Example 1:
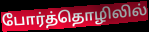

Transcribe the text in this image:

போர்த்தொழிலில்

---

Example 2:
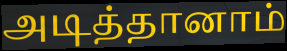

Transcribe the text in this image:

அடித்தானாம்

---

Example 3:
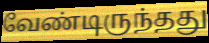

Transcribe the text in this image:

வேண்டிருந்தது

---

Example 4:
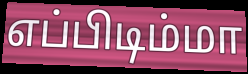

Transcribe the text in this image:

எப்பிடிம்மா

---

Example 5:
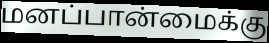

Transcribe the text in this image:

மனப்பான்மைக்கு